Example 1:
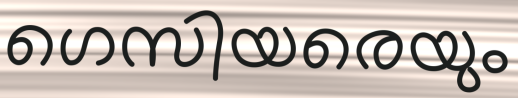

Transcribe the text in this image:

ഗെസിയരെയും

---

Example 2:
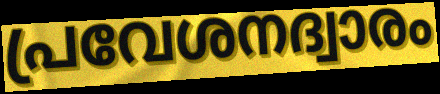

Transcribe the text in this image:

പ്രവേശനദ്വാരം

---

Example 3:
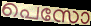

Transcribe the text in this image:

പെസോ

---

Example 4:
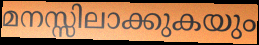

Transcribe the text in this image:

മനസ്സിലാക്കുകയും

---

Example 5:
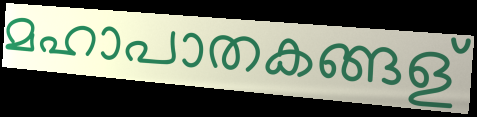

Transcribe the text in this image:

മഹാപാതകങ്ങള്